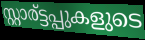
സ്റ്റാര്ട്ടപ്പുകളുടെ